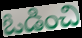
ఓడించి